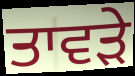
ਤਾਵੜੇ